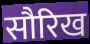
सौरिख